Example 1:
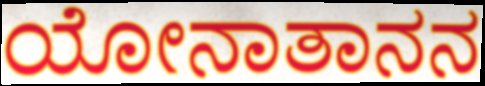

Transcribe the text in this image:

ಯೋನಾತಾನನ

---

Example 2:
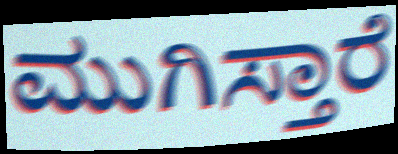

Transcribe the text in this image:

ಮುಗಿಸ್ತಾರೆ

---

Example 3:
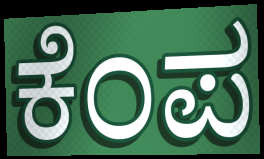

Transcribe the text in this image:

ಕೆಂಪ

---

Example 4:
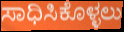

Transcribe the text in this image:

ಸಾಧಿಸಿಕೊಳ್ಳಲು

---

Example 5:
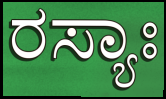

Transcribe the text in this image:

ರಸ್ಯಾಃ